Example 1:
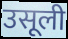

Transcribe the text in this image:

उसूली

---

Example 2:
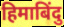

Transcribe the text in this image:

हिमाबिंदु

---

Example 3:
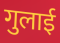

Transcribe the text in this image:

गुलाई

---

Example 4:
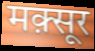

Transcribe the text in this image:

मक़्सूर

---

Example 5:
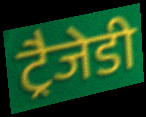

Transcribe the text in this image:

ट्रैजेडी